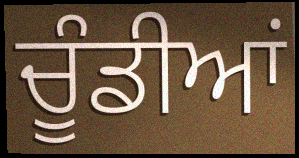
ਚੂੰਡੀਆਂ